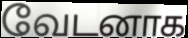
வேடனாக